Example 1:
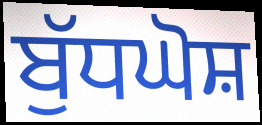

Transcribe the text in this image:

ਬੁੱਧਘੋਸ਼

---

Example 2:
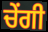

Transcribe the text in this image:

ਚੇਂਗੀ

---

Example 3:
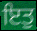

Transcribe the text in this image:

ਇਤੁ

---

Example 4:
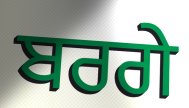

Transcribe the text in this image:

ਬਰਗੇ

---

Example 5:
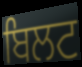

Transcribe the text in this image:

ਬਿਲਟ